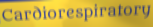
Cardiorespiratory